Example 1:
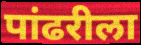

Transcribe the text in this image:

पांढरीला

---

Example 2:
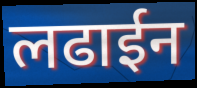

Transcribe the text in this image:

लढाईन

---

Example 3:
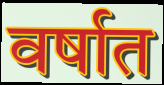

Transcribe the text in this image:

वर्षात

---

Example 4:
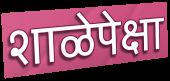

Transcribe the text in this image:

शाळेपेक्षा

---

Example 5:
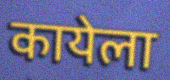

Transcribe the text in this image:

कायेला